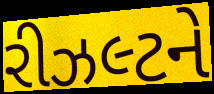
રીઝલ્ટને